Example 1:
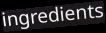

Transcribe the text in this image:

ingredients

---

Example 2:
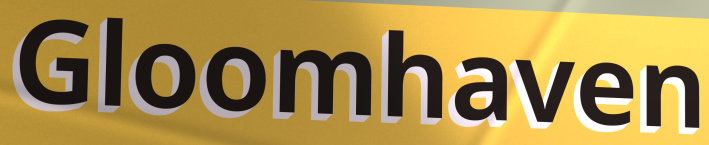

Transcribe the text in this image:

Gloomhaven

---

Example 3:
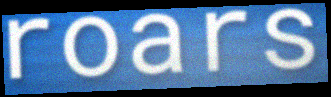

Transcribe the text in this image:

roars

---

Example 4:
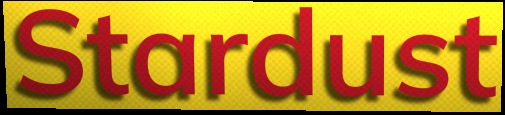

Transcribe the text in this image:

Stardust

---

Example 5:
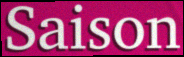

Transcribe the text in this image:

Saison